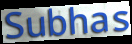
Subhas